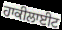
ਹਾਕੀਲਾਈਟ